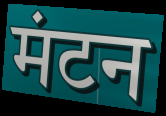
मंटन